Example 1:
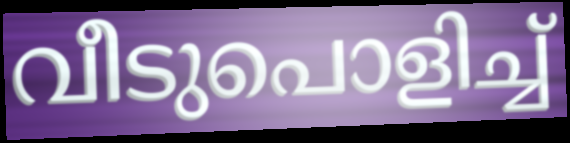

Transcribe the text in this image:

വീടുപൊളിച്ച്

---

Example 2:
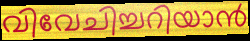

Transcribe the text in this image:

വിവേചിച്ചറിയാൻ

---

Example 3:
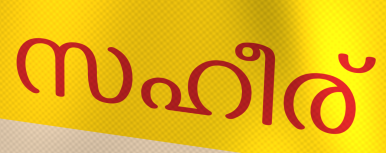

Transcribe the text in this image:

സഹീര്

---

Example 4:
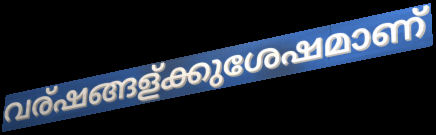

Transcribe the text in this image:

വര്ഷങ്ങള്ക്കുശേഷമാണ്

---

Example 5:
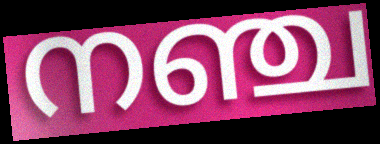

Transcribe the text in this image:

നഞ്ച